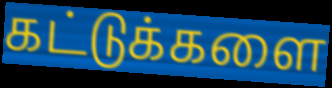
கட்டுக்களை